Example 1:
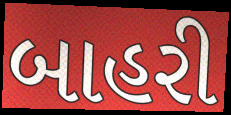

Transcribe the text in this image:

બાહરી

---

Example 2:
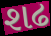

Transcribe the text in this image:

શઢ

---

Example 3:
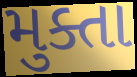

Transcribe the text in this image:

મુક્તા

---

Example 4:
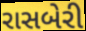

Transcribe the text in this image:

રાસબેરી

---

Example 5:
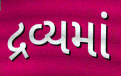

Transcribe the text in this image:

દ્રવ્યમાં